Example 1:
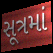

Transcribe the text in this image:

સૂત્રમાં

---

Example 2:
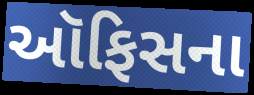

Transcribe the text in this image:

ઑફિસના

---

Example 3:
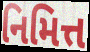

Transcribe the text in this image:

નિમિત્ત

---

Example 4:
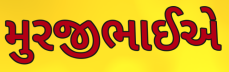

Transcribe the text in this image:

મુરજીભાઈએ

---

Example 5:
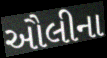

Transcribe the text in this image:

ઔલીના